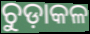
ଚୁଡ଼ାକଳ